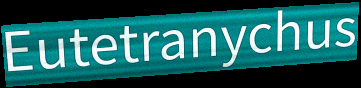
Eutetranychus